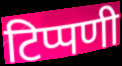
टिप्‍पणी